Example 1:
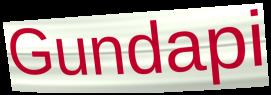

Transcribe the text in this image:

Gundapi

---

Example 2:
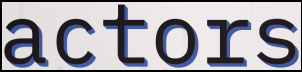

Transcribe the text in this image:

actors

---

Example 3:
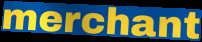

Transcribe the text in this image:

merchant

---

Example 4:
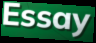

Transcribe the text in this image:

Essay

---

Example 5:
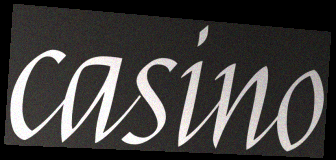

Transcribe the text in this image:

casino